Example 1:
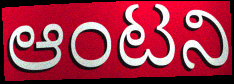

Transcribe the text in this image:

ಆಂಟನಿ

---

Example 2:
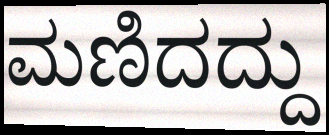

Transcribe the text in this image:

ಮಣಿದದ್ದು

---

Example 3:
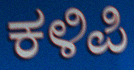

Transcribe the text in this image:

ಕಳಿಪಿ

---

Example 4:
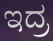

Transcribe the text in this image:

ಇದ್ರ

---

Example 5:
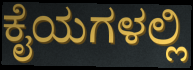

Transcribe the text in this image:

ಕೈಯಗಳಲ್ಲಿ